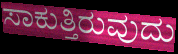
ಸಾಕುತ್ತಿರುವುದು